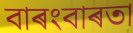
বাৰংবাৰতা